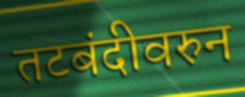
तटबंदीवरुन